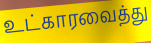
உட்காரவைத்து